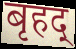
बृहद्